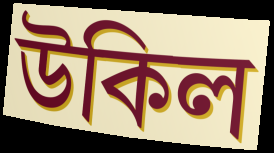
উকিল